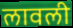
लावली